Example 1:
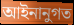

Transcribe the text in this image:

আইনানুগত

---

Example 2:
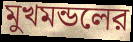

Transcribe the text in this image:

মুখমন্ডলের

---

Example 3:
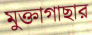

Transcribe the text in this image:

মুক্তাগাছার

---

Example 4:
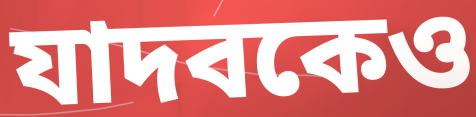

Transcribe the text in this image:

যাদবকেও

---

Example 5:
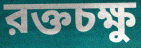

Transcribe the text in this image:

রক্তচক্ষু